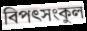
বিপৎসংকুল